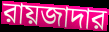
রায়জাদার